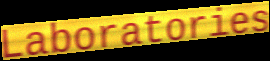
Laboratories